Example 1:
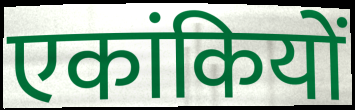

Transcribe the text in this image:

एकांकियों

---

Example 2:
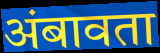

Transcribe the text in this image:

अंबावता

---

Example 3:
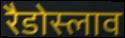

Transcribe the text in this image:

रैडोस्लाव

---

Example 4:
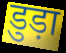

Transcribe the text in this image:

डुड़ा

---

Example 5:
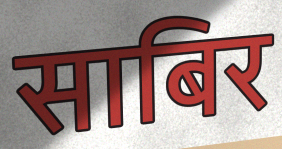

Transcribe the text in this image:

साबिर